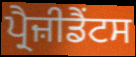
ਪ੍ਰੈਜ਼ੀਡੈਂਟਸ